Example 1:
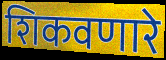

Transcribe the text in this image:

शिकवणारे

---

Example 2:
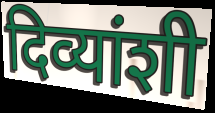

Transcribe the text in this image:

दिव्यांशी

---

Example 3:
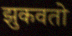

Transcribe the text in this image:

झुकवतो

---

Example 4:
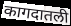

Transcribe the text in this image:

कागदातली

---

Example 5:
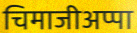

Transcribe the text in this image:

चिमाजीअप्पा